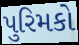
પુરિમકો